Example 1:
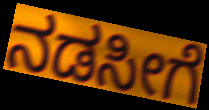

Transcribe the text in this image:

ನಡಸೀಗೆ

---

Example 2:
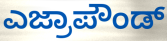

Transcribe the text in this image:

ಎಜ್ರಾಪೌಂಡ್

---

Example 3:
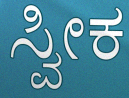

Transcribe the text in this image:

ಸ್ವೀಕ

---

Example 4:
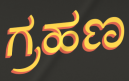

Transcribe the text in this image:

ಗ್ರಹಣ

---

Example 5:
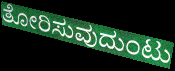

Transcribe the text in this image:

ತೋರಿಸುವುದುಂಟು